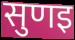
सुणइ